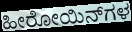
ಹೀರೋಯಿನ್‌ಗಳ